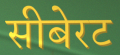
सीबेरट